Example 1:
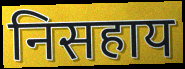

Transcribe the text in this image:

निसहाय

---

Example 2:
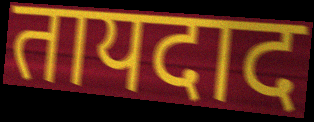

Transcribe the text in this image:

तायदाद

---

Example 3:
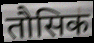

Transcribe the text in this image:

तौसिक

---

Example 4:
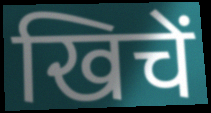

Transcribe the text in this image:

खिचें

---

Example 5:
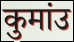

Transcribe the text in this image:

कुमांउ